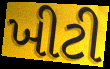
ખીટી